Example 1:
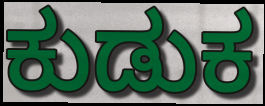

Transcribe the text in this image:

ಕುಡುಕ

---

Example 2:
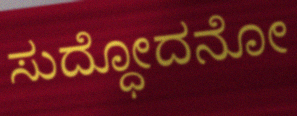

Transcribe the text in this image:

ಸುದ್ಧೋದನೋ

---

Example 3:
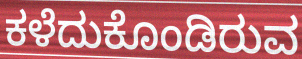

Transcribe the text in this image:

ಕಳೆದುಕೊಂಡಿರುವ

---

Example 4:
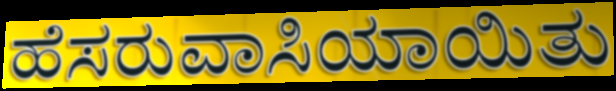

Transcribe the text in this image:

ಹೆಸರುವಾಸಿಯಾಯಿತು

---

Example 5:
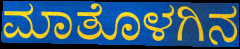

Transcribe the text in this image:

ಮಾತೊಳಗಿನ